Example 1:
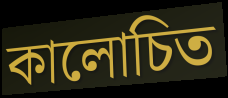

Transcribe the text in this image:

কালোচিত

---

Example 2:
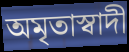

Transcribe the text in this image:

অমৃতাস্বাদী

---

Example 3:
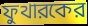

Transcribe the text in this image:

ফুথারকের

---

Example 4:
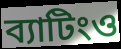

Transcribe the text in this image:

ব্যাটিংও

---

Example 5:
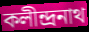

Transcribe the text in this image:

কলীন্দ্রনাথ